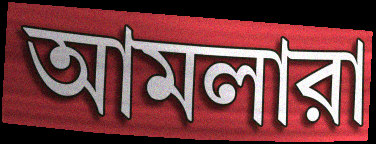
আমলারা